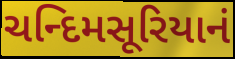
ચન્દિમસૂરિયાનં